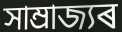
সাম্ৰাজ্যৰ